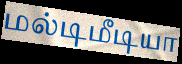
மல்டிமீடியா